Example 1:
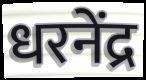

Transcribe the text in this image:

धरनेंद्र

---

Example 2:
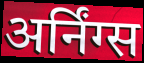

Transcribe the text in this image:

अर्निंग्स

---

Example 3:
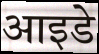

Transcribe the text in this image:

आइडे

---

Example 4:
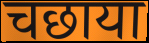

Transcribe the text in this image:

चछाया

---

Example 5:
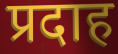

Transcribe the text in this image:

प्रदाह